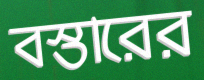
বস্তারের